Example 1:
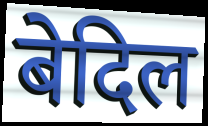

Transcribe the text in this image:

बेदिल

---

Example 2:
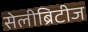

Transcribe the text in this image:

सेलीब्रिटीज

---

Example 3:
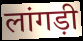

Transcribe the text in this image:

लांगड़ी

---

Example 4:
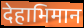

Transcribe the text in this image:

देहाभिमान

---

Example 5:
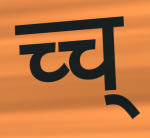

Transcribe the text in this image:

च्च्